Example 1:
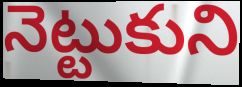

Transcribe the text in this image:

నెట్టుకుని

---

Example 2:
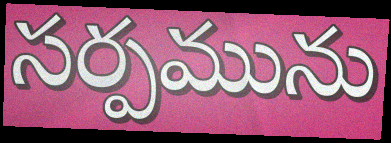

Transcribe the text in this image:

సర్పమును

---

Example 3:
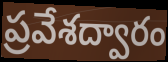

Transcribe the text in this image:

ప్రవేశద్వారం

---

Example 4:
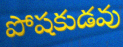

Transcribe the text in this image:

పోషకుడవు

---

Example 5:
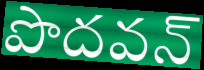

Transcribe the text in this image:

పొదవన్